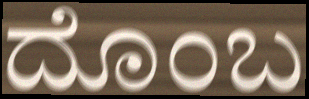
ದೊಂಬ